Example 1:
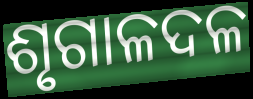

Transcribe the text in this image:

ଶୃଗାଳଦଳ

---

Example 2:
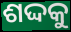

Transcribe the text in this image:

ଶଦ୍ଦକୁ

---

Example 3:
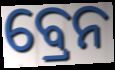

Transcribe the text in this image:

ବ୍ରେନ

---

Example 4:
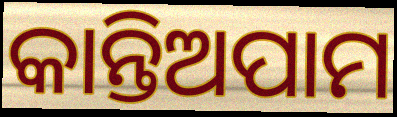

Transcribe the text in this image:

କାନ୍ତିଅପାମ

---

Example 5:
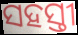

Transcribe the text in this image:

ସହସ୍ତୀ